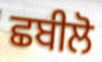
ਛਬੀਲੋ